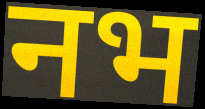
नभ